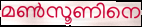
മൺസൂണിനെ